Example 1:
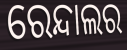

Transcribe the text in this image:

ରେନ୍ଦାଲର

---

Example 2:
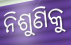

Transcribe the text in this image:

ନିଶୁଣିକୁ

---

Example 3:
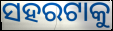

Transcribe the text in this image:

ସହରଟାକୁ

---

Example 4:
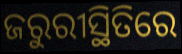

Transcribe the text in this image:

ଜରୁରୀସ୍ଥିତିରେ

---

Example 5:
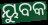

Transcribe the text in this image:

ୟୁବକ